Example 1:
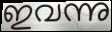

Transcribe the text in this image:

ഇവന്നു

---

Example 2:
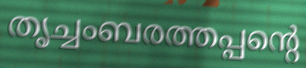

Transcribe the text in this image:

തൃച്ചംബരത്തപ്പന്റെ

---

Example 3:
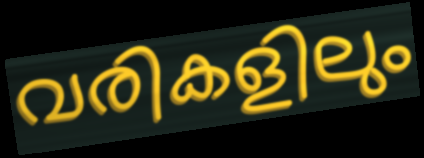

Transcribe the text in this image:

വരികളിലും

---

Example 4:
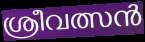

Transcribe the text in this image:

ശ്രീവത്സൻ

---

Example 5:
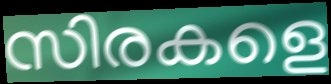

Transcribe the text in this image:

സിരകളെ